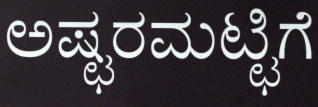
ಅಷ್ಟರಮಟ್ಟಿಗೆ